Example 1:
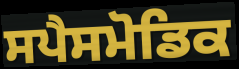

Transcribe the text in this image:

ਸਪੈਸਮੋਡਿਕ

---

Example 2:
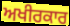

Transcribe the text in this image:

ਅਖੀਰਕਾਰ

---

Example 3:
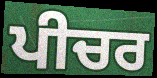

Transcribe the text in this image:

ਪੀਚਰ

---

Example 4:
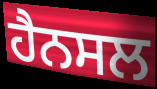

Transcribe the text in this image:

ਹੈਨਸਲ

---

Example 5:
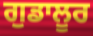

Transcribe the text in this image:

ਗੁਡਾਲੂਰ